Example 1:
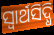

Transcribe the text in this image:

ସ୍ୱାର୍ଥସିଦ୍ଧି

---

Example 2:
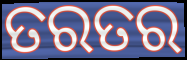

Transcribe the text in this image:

ତରତର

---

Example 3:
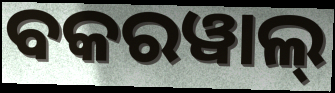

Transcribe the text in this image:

ବକରୱାଲ୍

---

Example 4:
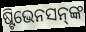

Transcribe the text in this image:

ଷ୍ଟିଭେନସନ୍‍ଙ୍କ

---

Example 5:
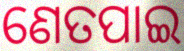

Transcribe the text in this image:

ଣେତପାଇ